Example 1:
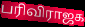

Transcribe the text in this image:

பரிவிராஜக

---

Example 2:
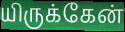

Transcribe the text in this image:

யிருக்கேன்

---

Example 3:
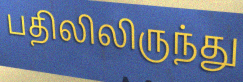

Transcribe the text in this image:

பதிலிலிருந்து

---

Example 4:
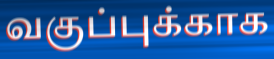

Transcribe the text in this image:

வகுப்புக்காக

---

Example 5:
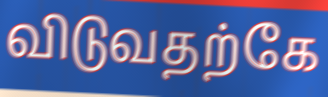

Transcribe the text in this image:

விடுவதற்கே